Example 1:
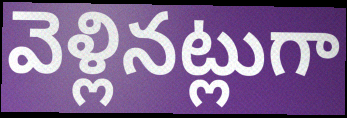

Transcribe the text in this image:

వెళ్లినట్లుగా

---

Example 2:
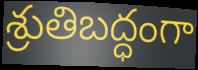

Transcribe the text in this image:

శ్రుతిబద్ధంగా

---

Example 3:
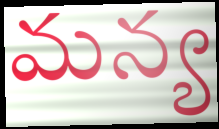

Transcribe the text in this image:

మన్య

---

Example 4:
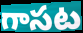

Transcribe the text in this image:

గాసట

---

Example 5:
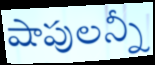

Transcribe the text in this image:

షాపులన్నీ